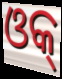
ଓକ୍